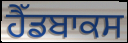
ਹੈੱਡਬਾਕਸ